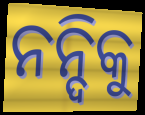
ନନ୍ଦିକୁ